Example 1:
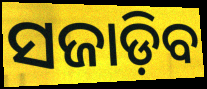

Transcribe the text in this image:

ସଜାଡ଼ିବ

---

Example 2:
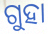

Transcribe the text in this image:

ଗୁହା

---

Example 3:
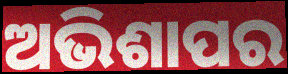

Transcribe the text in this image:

ଅଭିଶାପର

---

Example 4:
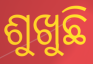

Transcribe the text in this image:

ଶୁଖୁଛି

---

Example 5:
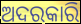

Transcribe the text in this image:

ଅଦରକାରି